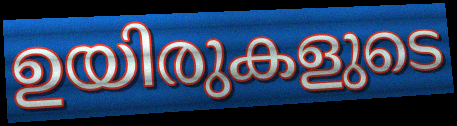
ഉയിരുകളുടെ